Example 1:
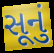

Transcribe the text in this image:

સૂનું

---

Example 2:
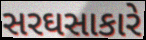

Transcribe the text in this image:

સરઘસાકારે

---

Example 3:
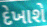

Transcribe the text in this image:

દેખાશે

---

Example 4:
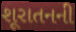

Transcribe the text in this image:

શૂરાતનની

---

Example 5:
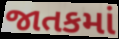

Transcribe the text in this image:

જાતકમાં